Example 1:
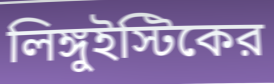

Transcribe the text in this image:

লিঙ্গুইস্টিকের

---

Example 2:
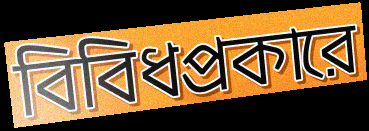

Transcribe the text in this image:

বিবিধপ্রকারে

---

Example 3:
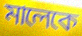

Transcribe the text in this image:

মালেকে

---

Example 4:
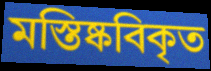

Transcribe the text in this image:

মস্তিষ্কবিকৃত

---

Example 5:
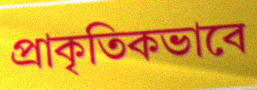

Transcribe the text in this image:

প্রাকৃতিকভাবে